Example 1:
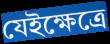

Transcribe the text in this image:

যেইক্ষেত্রে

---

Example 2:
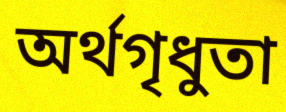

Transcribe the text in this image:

অর্থগৃধুতা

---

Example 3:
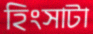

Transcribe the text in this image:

হিংসাটা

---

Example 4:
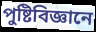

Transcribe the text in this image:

পুষ্টিবিজ্ঞানে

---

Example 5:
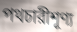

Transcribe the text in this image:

পথচারীশূণ্য